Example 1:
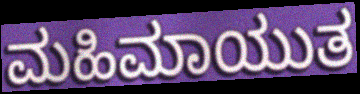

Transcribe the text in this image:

ಮಹಿಮಾಯುತ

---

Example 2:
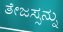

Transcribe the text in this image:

ತೇಜಸ್ಸನ್ನು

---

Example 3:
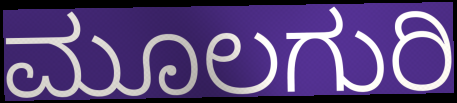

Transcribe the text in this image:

ಮೂಲಗುರಿ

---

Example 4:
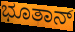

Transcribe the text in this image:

ಭೂತಾನ್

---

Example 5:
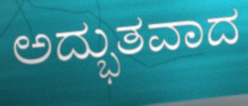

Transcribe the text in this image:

ಅದ್ಭುತವಾದ